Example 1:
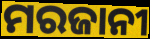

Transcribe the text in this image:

ମରଜାନୀ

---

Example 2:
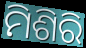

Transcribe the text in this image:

ମିଶିରି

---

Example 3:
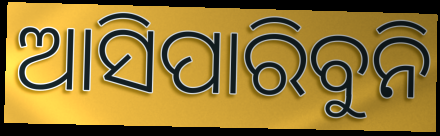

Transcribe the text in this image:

ଆସିପାରିବୁନି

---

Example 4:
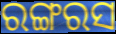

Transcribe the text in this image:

ରଙ୍ଗରସ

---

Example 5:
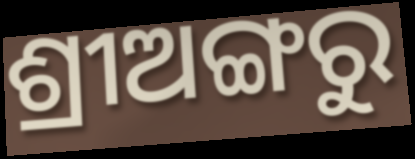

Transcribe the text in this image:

ଶ୍ରୀଅଙ୍ଗରୁ